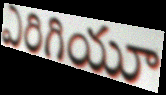
ఎరిగియూ